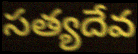
సత్యదేవ